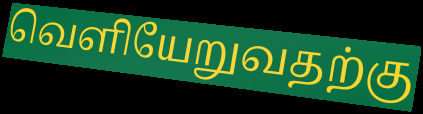
வெளியேறுவதற்கு